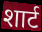
शार्ट